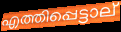
എത്തിപ്പെട്ടാല്